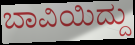
ಬಾವಿಯಿದ್ದು